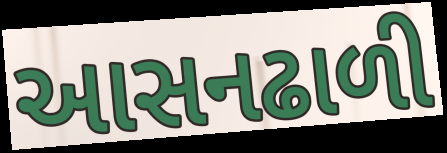
આસનઢાળી